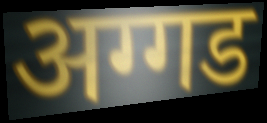
अग्गड